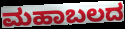
ಮಹಾಬಲದ